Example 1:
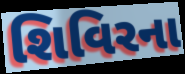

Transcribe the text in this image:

શિવિરના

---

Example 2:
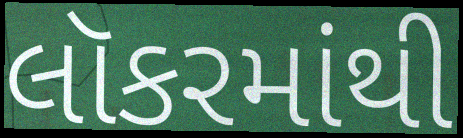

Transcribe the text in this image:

લૉકરમાંથી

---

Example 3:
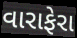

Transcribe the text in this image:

વારાફેરા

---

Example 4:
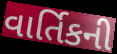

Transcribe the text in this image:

વાર્તિકની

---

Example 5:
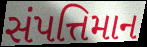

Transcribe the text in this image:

સંપત્તિમાન